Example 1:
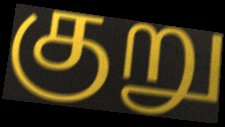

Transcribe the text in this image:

குறு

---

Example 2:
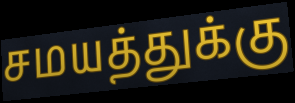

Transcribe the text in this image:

சமயத்துக்கு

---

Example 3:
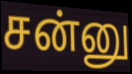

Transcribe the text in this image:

சன்னு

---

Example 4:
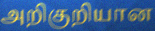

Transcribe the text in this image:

அறிகுறியான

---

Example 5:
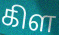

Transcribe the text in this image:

கிள